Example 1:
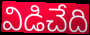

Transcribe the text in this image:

విడిచేది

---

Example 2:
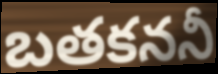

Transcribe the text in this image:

బతకననీ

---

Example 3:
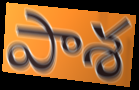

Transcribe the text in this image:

పాశ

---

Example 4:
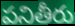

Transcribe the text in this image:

పనితీరు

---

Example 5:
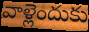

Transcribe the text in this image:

వాళ్లెందుకు